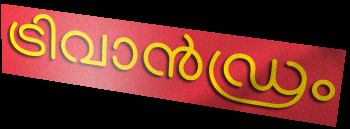
ട്രിവാൻഡ്രം